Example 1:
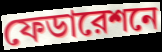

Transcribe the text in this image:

ফেডারেশনে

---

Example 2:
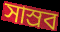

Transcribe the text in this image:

সাস্রব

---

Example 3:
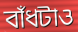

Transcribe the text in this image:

বাঁধটাও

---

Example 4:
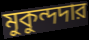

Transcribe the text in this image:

মুকুন্দদার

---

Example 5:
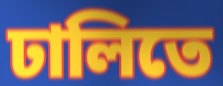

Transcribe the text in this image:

ঢালিতে